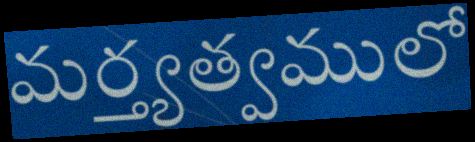
మర్త్యత్వములో